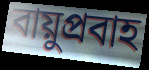
বায়ুপ্রবাহ